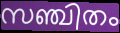
സഞ്ചിതം